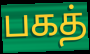
பகத்